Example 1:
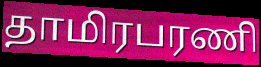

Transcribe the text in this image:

தாமிரபரணி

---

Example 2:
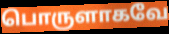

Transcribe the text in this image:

பொருளாகவே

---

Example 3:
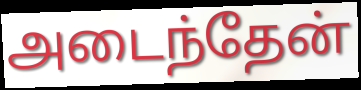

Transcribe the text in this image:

அடைந்தேன்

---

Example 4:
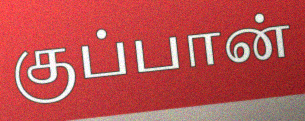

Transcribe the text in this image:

குப்பான்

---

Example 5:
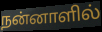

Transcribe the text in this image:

நன்னாளில்